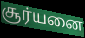
சூர்யனை